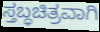
ಸ್ತಬ್ಧಚಿತ್ರವಾಗಿ